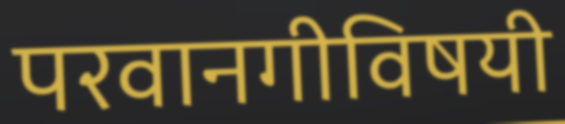
परवानगीविषयी